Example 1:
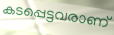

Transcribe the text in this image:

കടപ്പെട്ടവരാണ്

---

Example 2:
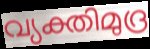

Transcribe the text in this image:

വ്യക്തിമുദ്ര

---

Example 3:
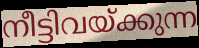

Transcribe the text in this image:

നീട്ടിവയ്ക്കുന്ന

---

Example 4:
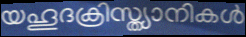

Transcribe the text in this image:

യഹൂദക്രിസ്ത്യാനികൾ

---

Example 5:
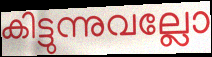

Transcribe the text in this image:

കിട്ടുന്നുവല്ലോ